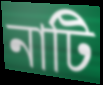
নাটি